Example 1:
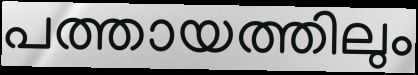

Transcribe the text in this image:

പത്തായത്തിലും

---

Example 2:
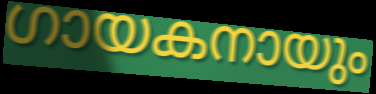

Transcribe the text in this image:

ഗായകനായും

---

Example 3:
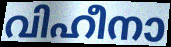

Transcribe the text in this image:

വിഹീനാ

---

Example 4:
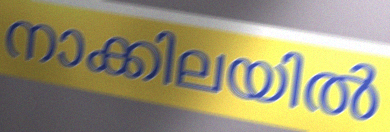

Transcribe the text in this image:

നാക്കിലയിൽ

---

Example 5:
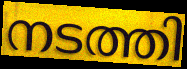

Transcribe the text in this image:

നടത്തി